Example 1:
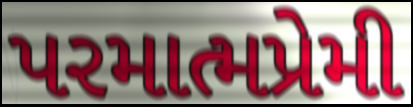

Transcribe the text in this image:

પરમાત્મપ્રેમી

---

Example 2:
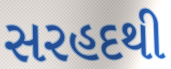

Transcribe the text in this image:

સરહદથી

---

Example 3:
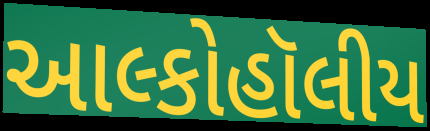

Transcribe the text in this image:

આલ્કોહૉલીય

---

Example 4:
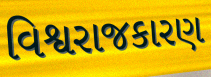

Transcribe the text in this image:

વિશ્વરાજકારણ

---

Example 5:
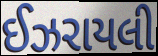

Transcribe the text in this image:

ઈઝરાયલી